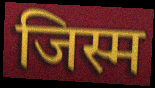
जिस्म